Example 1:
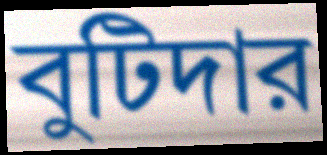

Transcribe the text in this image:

বুটিদার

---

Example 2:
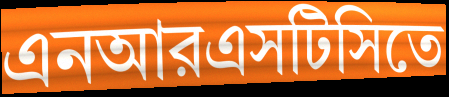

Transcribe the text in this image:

এনআরএসটিসিতে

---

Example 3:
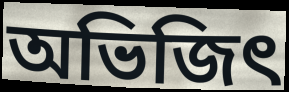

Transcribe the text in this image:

অভিজিৎ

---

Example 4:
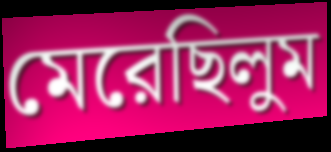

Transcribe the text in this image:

মেরেছিলুম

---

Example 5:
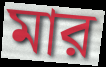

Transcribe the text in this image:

মার